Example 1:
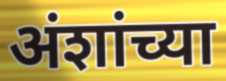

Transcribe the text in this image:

अंशांच्या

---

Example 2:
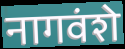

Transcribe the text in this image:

नागवंशे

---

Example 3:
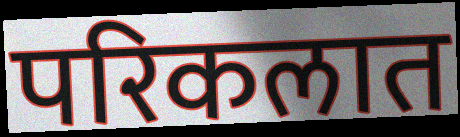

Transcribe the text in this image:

परिकलात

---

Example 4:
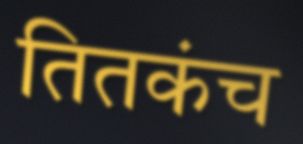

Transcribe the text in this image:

तितकंच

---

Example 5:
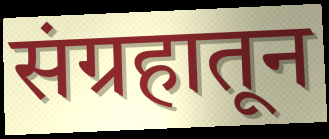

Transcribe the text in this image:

संग्रहातून